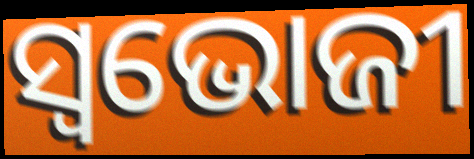
ସ୍ଵଭୋଜୀ